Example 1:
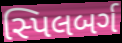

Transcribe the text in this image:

સ્પિલબર્ગ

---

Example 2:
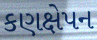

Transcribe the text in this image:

કણક્ષેપન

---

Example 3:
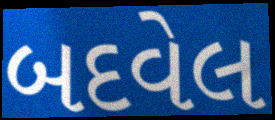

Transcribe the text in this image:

બદવેલ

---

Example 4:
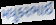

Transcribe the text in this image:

મધુકરભાઈ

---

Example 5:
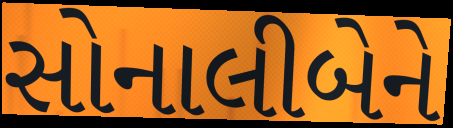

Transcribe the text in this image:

સોનાલીબેને